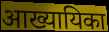
आख्यायिका